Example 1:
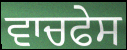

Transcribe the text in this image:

ਵਾਚਫੇਸ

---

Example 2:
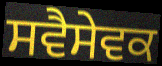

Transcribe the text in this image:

ਸਵੈਸੇਵਕ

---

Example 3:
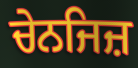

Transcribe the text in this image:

ਚੇਨਜਿਜ਼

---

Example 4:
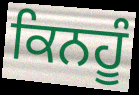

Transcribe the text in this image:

ਕਿਨਹੂੰ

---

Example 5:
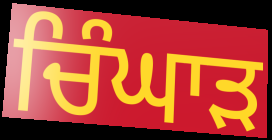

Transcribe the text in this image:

ਚਿੰਘਾੜ